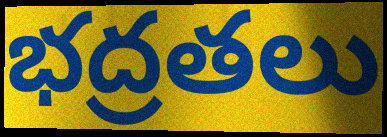
భద్రతలు